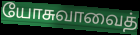
யோசுவாவைத்